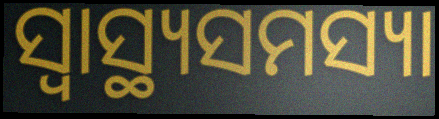
ସ୍ୱାସ୍ଥ୍ୟସମସ୍ୟା